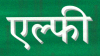
एल्फी